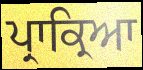
ਪ੍ਰਾਕ੍ਰਿਆ